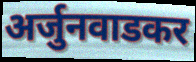
अर्जुनवाडकर